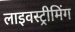
लाइवस्ट्रीमिंग